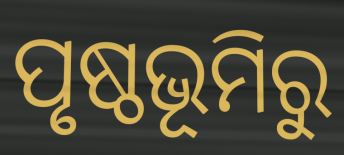
ପୃଷ୍ଠଭୂମିରୁ